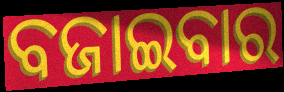
ବଜାଇବାର